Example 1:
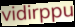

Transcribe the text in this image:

vidirppu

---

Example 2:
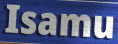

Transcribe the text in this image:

Isamu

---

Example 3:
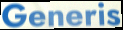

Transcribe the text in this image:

Generis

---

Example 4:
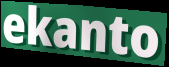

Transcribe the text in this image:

ekanto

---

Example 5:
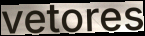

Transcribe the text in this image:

vetores